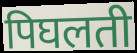
पिघलती